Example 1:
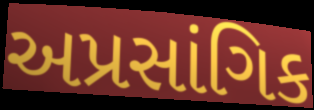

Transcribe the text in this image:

અપ્રસાંગિક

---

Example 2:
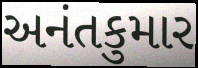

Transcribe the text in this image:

અનંતકુમાર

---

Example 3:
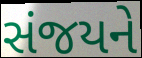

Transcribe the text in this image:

સંજયને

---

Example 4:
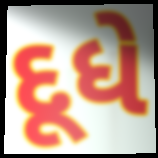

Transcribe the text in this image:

દૂધે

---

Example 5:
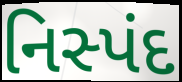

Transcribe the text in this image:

નિસ્પંદ